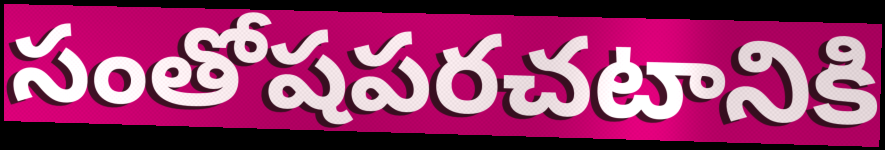
సంతోషపరచటానికి